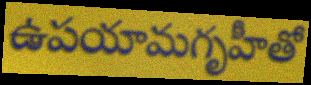
ఉపయామగృహీతో